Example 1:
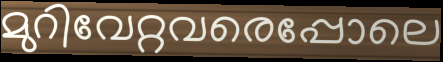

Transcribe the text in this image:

മുറിവേറ്റവരെപ്പോലെ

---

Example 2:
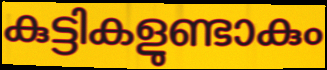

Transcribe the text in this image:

കുട്ടികളുണ്ടാകും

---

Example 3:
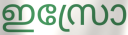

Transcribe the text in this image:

ഇസ്രോ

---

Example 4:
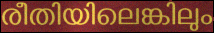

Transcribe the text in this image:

രീതിയിലെങ്കിലും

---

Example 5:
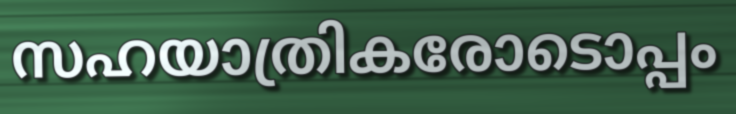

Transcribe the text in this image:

സഹയാത്രികരോടൊപ്പം